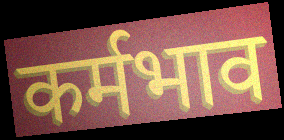
कर्मभाव